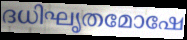
ദധിഘൃതമോഷേ